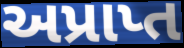
અપ્રાપ્ત